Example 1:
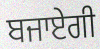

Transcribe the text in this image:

ਬਜਾਏਗੀ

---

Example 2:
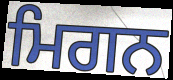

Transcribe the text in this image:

ਮਿਗਨ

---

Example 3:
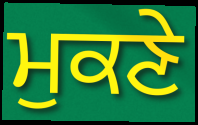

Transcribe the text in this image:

ਮੁਕਣੇ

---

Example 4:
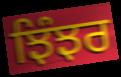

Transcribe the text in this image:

ਝਿੰਝਰ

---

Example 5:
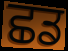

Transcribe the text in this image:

ਛਡ